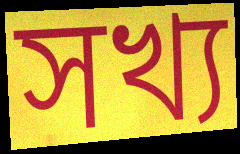
সখ্য